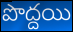
పొద్దయి